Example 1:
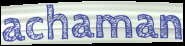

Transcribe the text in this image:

achaman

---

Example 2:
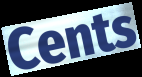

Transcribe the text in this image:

Cents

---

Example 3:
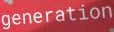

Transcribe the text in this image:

generation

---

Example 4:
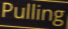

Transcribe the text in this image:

Pulling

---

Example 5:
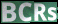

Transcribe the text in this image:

BCRs